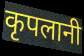
कृपलानी